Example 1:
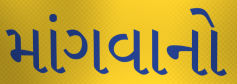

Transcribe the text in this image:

માંગવાનો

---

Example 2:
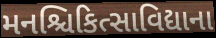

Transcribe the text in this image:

મનશ્ચિકિત્સાવિદ્યાના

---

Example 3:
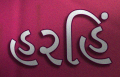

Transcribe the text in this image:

હરહિં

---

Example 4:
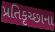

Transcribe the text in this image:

પ્રતિકૃચ્છાના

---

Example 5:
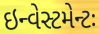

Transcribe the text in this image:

ઇન્વેસ્ટમેન્ટઃ